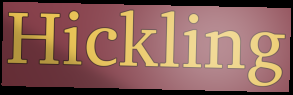
Hickling